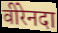
वीरेनदा